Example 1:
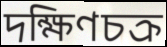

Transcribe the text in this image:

দক্ষিণচক্র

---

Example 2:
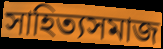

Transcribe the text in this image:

সাহিত্যসমাজ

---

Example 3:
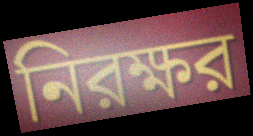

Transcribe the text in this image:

নিরক্ষর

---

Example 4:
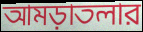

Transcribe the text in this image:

আমড়াতলার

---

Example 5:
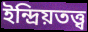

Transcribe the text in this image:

ইন্দ্রিয়তত্ত্ব